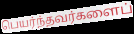
பெயர்ந்தவர்களைப்